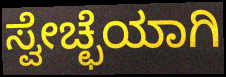
ಸ್ವೇಚ್ಛೆಯಾಗಿ